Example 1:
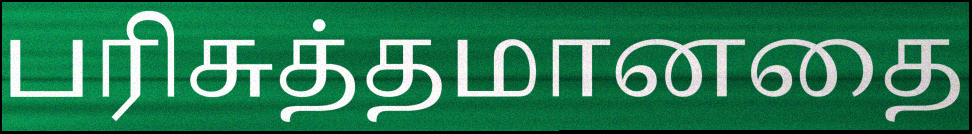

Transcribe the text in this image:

பரிசுத்தமானதை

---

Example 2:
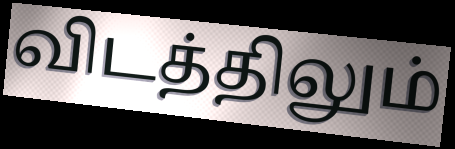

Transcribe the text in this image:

விடத்திலும்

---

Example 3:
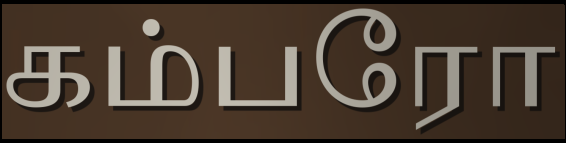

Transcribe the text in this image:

கம்பரோ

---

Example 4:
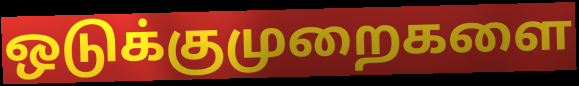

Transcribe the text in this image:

ஒடுக்குமுறைகளை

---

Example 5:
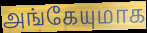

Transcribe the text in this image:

அங்கேயுமாக